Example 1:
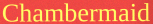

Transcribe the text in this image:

Chambermaid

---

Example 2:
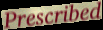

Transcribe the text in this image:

Prescribed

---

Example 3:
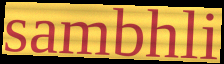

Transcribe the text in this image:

sambhli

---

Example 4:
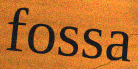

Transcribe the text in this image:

fossa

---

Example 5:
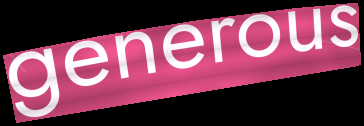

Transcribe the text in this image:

generous